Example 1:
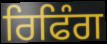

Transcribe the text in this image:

ਰਿਫਿੰਗ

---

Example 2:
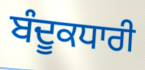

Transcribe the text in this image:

ਬੰਦੂਕਧਾਰੀ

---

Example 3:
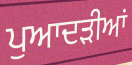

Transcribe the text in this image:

ਪੁਆਦੜੀਆਂ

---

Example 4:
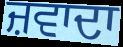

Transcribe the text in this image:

ਜ਼ਵਾਦਾ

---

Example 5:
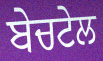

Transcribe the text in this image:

ਬੇਚਟੇਲ